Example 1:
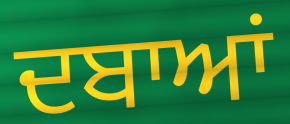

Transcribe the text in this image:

ਦਬਾਆਂ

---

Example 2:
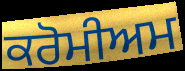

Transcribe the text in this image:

ਕਰੋਮੀਅਮ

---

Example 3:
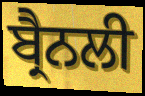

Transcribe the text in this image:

ਬ੍ਰੈਨਲੀ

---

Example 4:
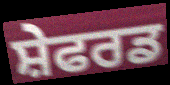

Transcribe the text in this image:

ਸ਼ੇਫਰਡ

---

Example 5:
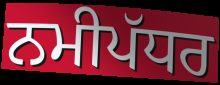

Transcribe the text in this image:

ਨਮੀਪੱਧਰ